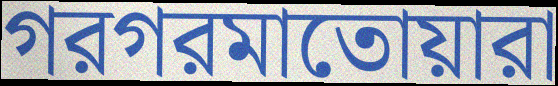
গরগরমাতোয়ারা